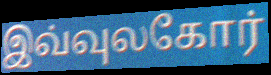
இவ்வுலகோர்